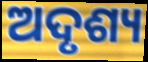
ଅଦୃଶ୍ୟ